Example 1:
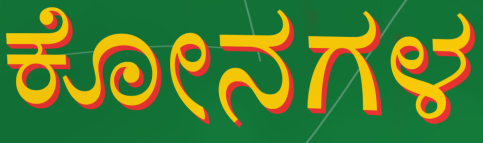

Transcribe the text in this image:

ಕೋನಗಳ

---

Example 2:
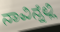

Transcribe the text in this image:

ನಾವಿನ್ನೆಲ್ಲಿ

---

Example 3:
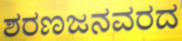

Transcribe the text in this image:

ಶರಣಜನವರದ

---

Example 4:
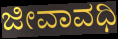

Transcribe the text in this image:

ಜೀವಾವಧಿ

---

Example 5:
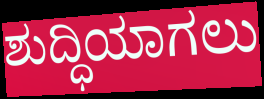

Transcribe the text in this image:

ಶುದ್ಧಿಯಾಗಲು